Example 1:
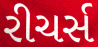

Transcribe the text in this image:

રીચર્સ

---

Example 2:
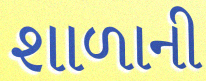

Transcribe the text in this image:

શાળાની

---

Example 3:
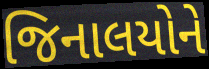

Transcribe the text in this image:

જિનાલયોને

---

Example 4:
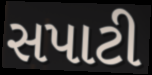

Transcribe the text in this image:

સપાટી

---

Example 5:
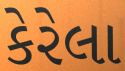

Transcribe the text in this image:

કેરેલા